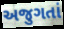
અજુગતાં